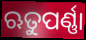
ଋତୁପର୍ଣ୍ଣା